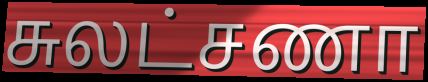
சுலட்சணா